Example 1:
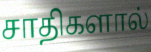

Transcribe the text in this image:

சாதிகளால்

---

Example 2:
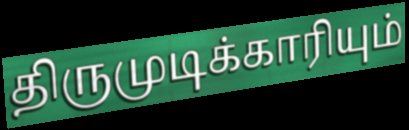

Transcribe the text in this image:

திருமுடிக்காரியும்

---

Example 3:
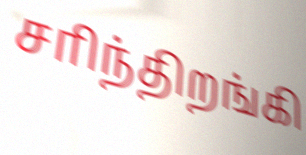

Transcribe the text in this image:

சரிந்திறங்கி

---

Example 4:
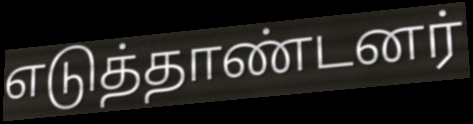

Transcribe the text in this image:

எடுத்தாண்டனர்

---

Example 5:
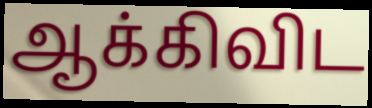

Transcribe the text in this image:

ஆக்கிவிட